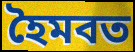
হৈমবত